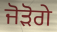
ਜੋੜੋਗੇ